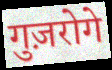
गुज़रोगे